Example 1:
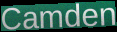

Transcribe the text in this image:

Camden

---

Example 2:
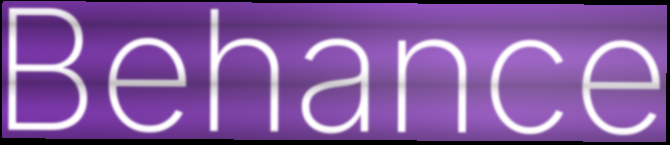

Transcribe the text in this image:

Behance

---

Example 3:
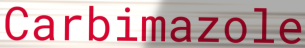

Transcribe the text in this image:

Carbimazole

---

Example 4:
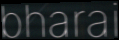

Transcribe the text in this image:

bharai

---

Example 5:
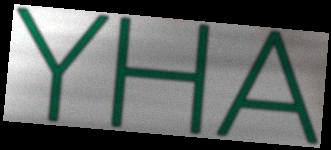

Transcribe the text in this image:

YHA